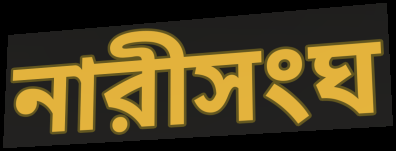
নারীসংঘ